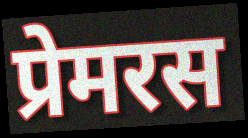
प्रेमरस